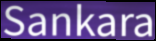
Sankara